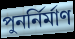
পুনর্নির্মাণ